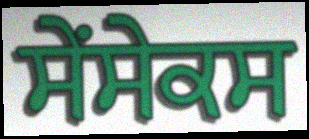
ਸੇਂਸੇਕਸ